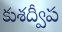
కుశద్వీప